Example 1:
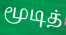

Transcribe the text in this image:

மூடித்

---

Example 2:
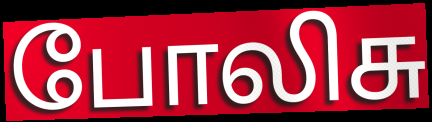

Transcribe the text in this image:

போலிசு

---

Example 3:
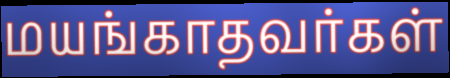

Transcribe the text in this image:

மயங்காதவர்கள்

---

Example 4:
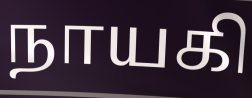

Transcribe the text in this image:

நாயகி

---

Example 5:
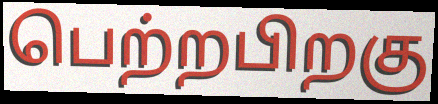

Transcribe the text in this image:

பெற்றபிறகு